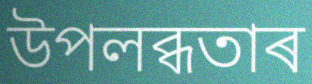
উপলব্ধতাৰ